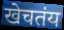
खेचतंय